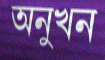
অনুখন